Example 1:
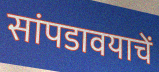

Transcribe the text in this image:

सांपडावयाचें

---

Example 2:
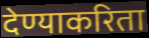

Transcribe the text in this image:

देण्याकरिता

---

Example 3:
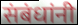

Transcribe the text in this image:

संबंधांनी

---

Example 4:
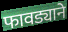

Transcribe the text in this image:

फावड्याने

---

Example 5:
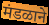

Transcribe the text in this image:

मंडळाने